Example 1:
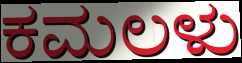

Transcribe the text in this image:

ಕಮಲಳು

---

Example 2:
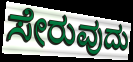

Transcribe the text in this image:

ಸೇರುವುದು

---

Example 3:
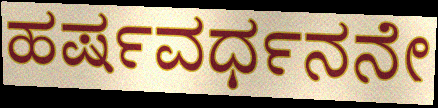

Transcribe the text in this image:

ಹರ್ಷವರ್ಧನನೇ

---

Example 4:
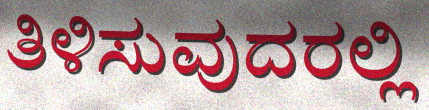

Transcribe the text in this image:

ತಿಳಿಸುವುದರಲ್ಲಿ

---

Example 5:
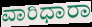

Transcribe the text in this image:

ವಾರಿಧಾರಾ